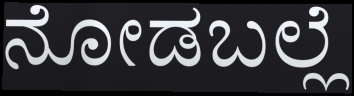
ನೋಡಬಲ್ಲೆ